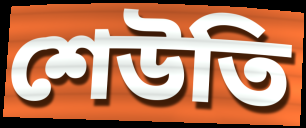
শেউতি